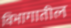
विभागातील